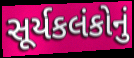
સૂર્યકલંકોનું